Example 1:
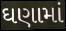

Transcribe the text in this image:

ઘણામાં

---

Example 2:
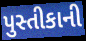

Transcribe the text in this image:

પુસ્તીકાની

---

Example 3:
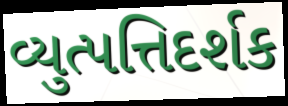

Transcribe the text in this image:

વ્યુત્પત્તિદર્શક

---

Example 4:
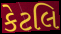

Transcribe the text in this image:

કેટલિ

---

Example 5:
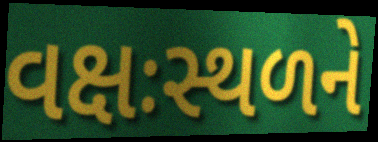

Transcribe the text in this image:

વક્ષઃસ્થળને